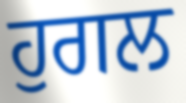
ਹੁਗਲ